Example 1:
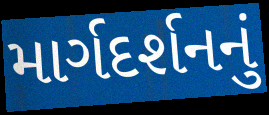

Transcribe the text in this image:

માર્ગદર્શનનું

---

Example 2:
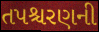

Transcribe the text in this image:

તપશ્ચરણની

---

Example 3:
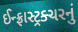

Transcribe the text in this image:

ઈન્ફ્રાસ્ટ્રક્ચરનું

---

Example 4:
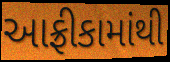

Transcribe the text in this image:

આફ્રીકામાંથી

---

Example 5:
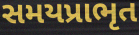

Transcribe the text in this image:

સમયપ્રાભૃત